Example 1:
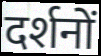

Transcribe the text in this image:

दर्शनों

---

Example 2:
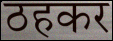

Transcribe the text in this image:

ठहकर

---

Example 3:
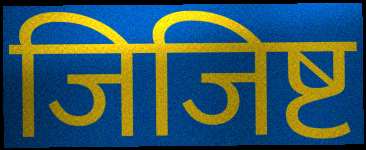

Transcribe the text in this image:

जिजिष्ट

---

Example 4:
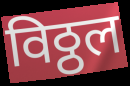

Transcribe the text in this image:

विठ्ठल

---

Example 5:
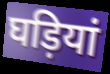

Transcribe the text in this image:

घड़ियां